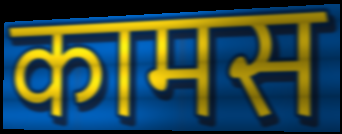
कामस